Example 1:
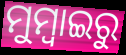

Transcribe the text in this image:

ମୁମ୍ବାଇରୁ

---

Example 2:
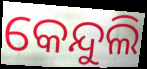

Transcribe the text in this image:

କେନ୍ଦୁଲି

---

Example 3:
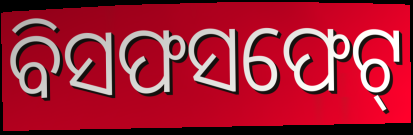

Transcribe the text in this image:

ବିସଫସଫେଟ୍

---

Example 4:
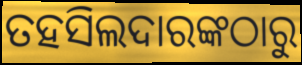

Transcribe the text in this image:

ତହସିଲଦାରଙ୍କଠାରୁ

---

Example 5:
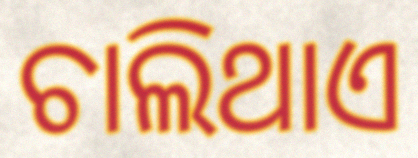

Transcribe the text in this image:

ଚାଲିଥାଏ